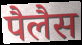
पैलैस